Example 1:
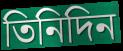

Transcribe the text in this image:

তিনিদিন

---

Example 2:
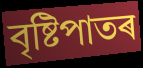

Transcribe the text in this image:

বৃষ্টিপাতৰ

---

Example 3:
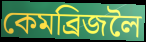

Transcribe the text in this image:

কেমব্ৰিজলৈ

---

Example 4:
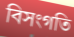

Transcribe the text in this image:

বিসংগতি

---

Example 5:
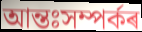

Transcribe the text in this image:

আন্তঃসম্পৰ্কৰ